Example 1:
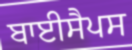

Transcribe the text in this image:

ਬਾਈਸੈਪਸ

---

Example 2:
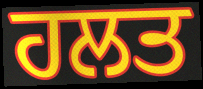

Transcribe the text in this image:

ਹਲਤ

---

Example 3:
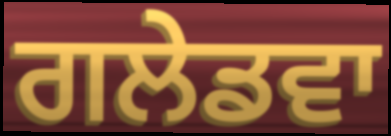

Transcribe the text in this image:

ਗਲੇਡਵਾ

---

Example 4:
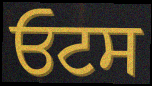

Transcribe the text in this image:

ਓਟਸ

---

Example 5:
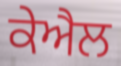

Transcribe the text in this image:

ਕੇਐਲ